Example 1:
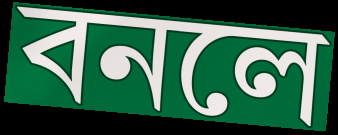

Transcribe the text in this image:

বনলে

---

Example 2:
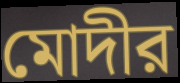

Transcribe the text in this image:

মোদীর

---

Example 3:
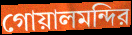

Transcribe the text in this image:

গোয়ালমন্দির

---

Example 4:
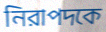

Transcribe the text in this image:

নিরাপদকে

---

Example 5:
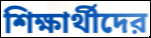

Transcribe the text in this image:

শিক্ষার্থীদের